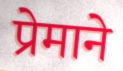
प्रेमाने